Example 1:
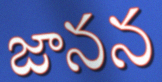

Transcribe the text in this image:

జానన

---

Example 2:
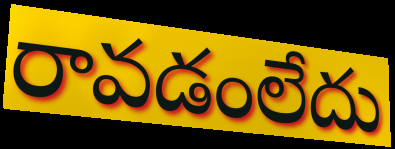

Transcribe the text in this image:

రావడంలేదు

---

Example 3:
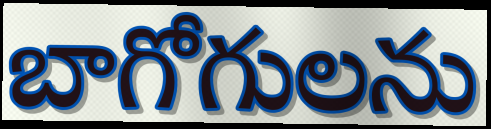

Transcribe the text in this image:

బాగోగులను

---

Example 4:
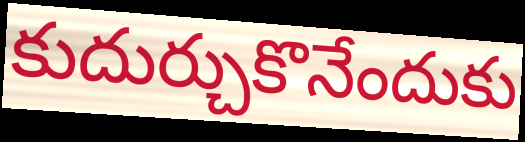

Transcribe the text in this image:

కుదుర్చుకొనేందుకు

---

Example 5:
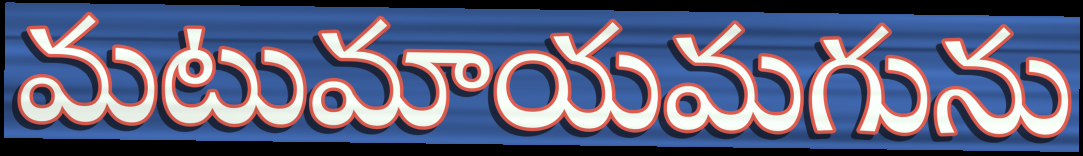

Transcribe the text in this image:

మటుమాయమగును